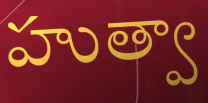
హుత్వా